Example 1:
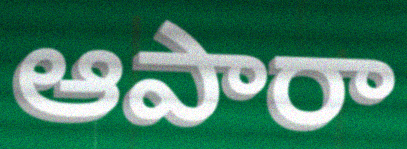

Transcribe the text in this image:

ఆపారా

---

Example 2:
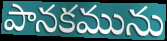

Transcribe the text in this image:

పానకమును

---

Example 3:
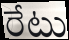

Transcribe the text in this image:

రేటు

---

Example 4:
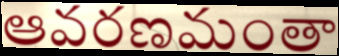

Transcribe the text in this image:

ఆవరణమంతా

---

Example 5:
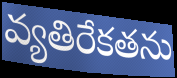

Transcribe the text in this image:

వ్యతిరేకతను